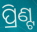
ପ୍ରିଣ୍ଟ